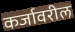
कर्जावरील